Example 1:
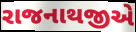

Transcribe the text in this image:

રાજનાથજીએ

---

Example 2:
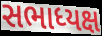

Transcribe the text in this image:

સભાધ્યક્ષ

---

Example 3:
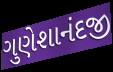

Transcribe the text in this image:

ગુણેશાનંદજી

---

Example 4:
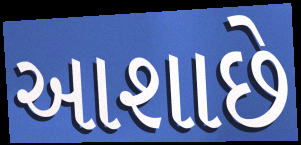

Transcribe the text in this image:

આશાછે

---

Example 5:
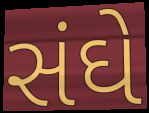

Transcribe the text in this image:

સંઘે